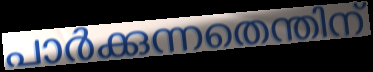
പാർക്കുന്നതെന്തിന്